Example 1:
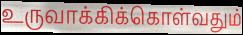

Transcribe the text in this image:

உருவாக்கிக்கொள்வதும்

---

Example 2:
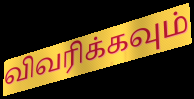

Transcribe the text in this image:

விவரிக்கவும்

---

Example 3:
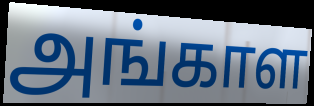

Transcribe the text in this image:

அங்காள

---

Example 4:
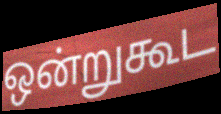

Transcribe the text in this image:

ஒன்றுகூட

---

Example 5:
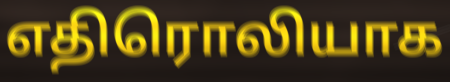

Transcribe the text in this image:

எதிரொலியாக